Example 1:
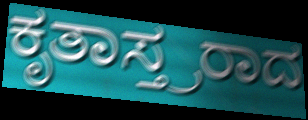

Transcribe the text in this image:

ಕೃತಾಸ್ತ್ರರಾದ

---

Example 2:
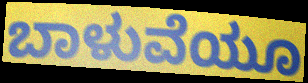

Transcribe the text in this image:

ಬಾಳುವೆಯೂ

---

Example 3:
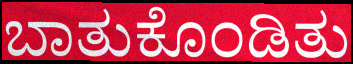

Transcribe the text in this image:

ಬಾತುಕೊಂಡಿತು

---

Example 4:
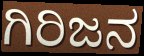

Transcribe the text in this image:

ಗಿರಿಜನ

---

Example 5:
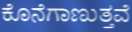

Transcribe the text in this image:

ಕೊನೆಗಾಣುತ್ತವೆ